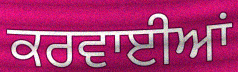
ਕਰਵਾਈਆਂ